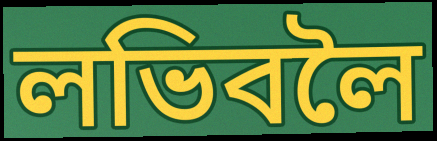
লভিবলৈ